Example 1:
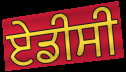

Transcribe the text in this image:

ਏਡੀਸੀ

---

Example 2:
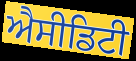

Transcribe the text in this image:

ਐਸੀਡਿਟੀ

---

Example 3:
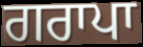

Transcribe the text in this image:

ਗਰਾਪਾ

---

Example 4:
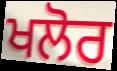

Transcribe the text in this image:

ਖਲੋਰ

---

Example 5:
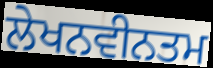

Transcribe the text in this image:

ਲੇਖਨਵੀਨਤਮ